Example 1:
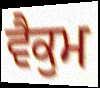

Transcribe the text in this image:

ਵੈਕੁਮ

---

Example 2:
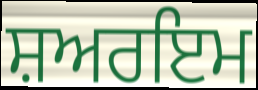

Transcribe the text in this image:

ਸ਼ਅਰਇਮ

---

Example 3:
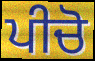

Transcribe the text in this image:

ਪੀਚੋ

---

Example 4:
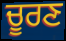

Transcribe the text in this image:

ਚੂਰਣ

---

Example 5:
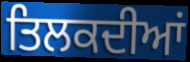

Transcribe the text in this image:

ਤਿਲਕਦੀਆਂ